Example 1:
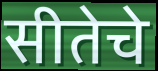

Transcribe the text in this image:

सीतेचे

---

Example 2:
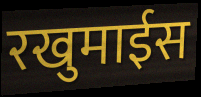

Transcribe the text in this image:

रखुमाईस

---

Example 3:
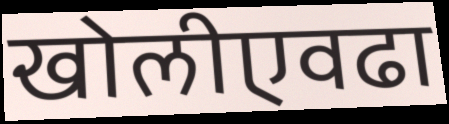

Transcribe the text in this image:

खोलीएवढा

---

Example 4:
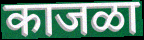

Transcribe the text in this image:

काजळा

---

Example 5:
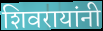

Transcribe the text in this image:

शिवरायांनी